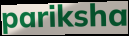
pariksha